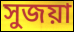
সুজয়া